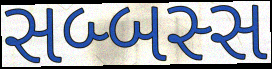
સબ્બસ્સ